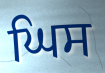
ਘਿਸ